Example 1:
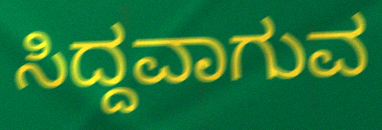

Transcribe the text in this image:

ಸಿದ್ದವಾಗುವ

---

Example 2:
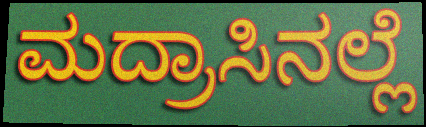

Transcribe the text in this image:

ಮದ್ರಾಸಿನಲ್ಲೆ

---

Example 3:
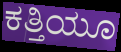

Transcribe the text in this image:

ಕತ್ತಿಯೂ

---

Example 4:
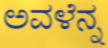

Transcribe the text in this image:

ಅವಳೆನ್ನ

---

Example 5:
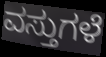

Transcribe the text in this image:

ವಸ್ತುಗಳೆ